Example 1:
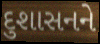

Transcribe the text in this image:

દુશાસનને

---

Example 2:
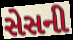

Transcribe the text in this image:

સેસની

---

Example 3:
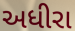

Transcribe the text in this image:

અધીરા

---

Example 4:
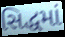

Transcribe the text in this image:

સિદ્ધમાં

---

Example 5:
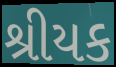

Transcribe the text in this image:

શ્રીયક